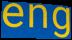
eng